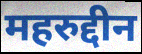
महरुद्दीन